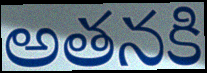
అతనకి